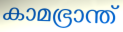
കാമഭ്രാന്ത്